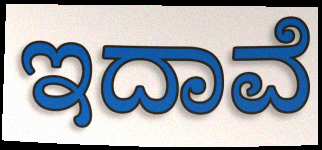
ಇದಾವೆ